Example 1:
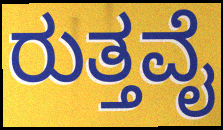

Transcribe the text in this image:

ರುತ್ತವೈ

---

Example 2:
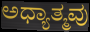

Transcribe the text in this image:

ಅಧ್ಯಾತ್ಮವು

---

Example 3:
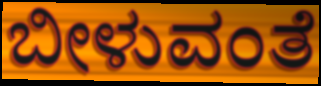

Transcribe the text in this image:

ಬೀಳುವಂತೆ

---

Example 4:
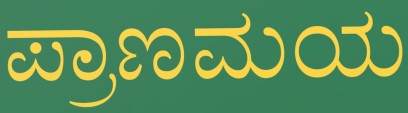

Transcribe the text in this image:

ಪ್ರಾಣಮಯ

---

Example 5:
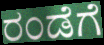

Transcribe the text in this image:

ರಂಡೆಗೆ